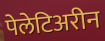
पेलेटिअरीन